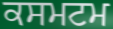
ਕਸਮਟਮ